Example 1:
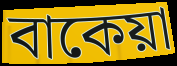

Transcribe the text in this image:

বাকেয়া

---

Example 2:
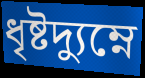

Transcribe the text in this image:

ধৃষ্টদ্যুম্নে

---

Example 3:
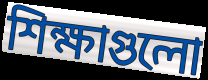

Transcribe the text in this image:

শিক্ষাগুলো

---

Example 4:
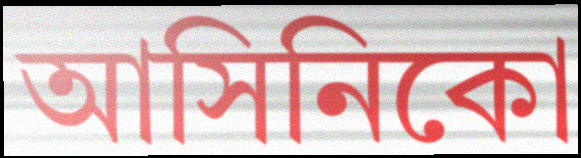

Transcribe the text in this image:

আসিনিকো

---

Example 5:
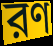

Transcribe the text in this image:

রণ